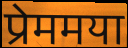
प्रेममया